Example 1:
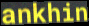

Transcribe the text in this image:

ankhin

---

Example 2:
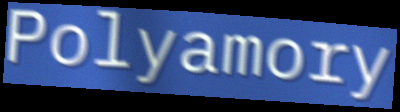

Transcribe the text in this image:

Polyamory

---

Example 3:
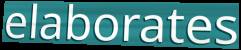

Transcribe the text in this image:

elaborates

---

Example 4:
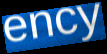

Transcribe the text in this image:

ency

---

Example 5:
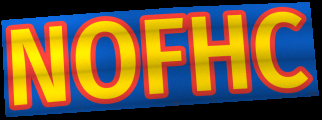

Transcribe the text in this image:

NOFHC